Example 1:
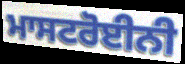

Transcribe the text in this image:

ਮਾਸਟਰੋਈਨੀ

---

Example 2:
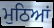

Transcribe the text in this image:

ਮੁਠਿਆਂ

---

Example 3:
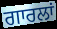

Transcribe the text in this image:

ਗਾਰਲਾਂ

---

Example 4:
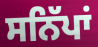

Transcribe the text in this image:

ਸਨਿੱਪਾਂ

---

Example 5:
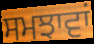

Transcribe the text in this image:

ਸਮਝਾਵਾਂ